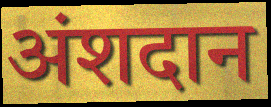
अंशदान